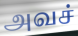
அவச்